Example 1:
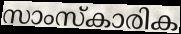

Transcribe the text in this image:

സാംസ്കാരിക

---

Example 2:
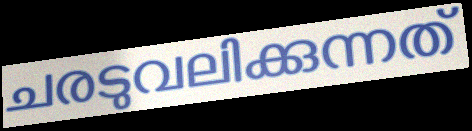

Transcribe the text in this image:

ചരടുവലിക്കുന്നത്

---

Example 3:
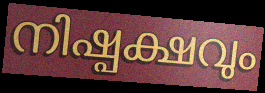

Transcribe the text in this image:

നിഷ്പക്ഷവും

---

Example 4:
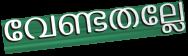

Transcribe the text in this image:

വേണ്ടതല്ലേ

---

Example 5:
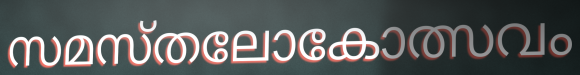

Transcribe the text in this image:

സമസ്തലോകോത്സവം